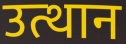
उत्थान